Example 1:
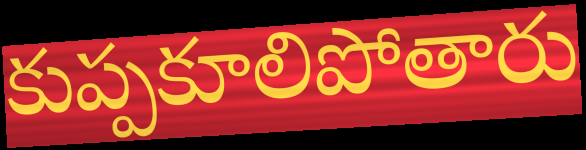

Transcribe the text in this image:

కుప్పకూలిపోతారు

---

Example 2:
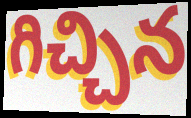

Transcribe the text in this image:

గిచ్చిన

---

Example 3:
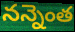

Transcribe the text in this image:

నన్నెంత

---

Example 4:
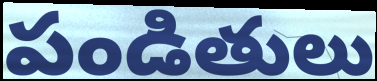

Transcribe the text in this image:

పండితులు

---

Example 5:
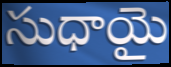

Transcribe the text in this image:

సుధాయై